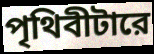
পৃথিবীটারে